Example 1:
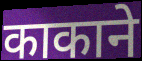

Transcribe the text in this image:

काकाने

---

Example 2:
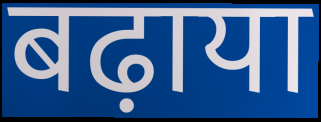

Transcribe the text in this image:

बढ़ाया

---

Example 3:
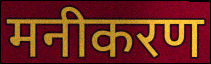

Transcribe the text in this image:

मनीकरण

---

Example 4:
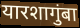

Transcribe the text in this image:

यारशागुंबा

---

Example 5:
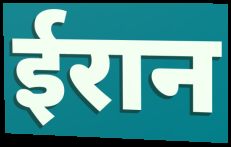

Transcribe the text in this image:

ईरान